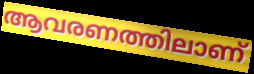
ആവരണത്തിലാണ്